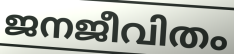
ജനജീവിതം